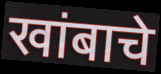
खांबाचे